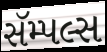
સૅમ્પલ્સ